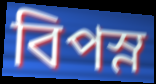
বিপস্ন